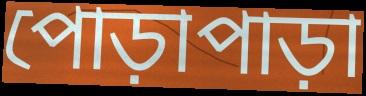
পোড়াপাড়া